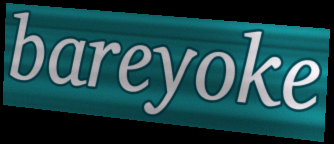
bareyoke